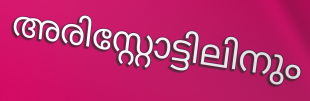
അരിസ്റ്റോട്ടിലിനും